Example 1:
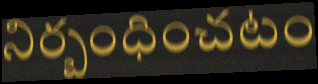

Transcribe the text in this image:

నిర్బంధించటం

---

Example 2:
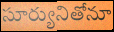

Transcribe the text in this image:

సూర్యునితోనూ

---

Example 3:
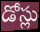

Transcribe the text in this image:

డోస్లు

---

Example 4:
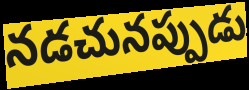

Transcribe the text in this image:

నడచునప్పుడు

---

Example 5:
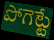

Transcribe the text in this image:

పోగెట్టే